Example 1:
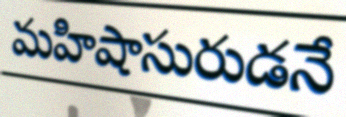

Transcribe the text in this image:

మహిషాసురుడనే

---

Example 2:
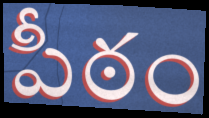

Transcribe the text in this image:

పీఠం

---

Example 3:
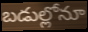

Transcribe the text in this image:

బడుల్లోనూ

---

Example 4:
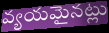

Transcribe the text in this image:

వ్యయమైనట్లు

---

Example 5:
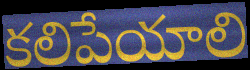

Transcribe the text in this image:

కలిపేయాలి